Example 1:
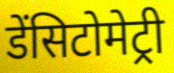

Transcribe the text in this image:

डेंसिटोमेट्री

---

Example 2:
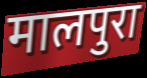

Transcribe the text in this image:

मालपुरा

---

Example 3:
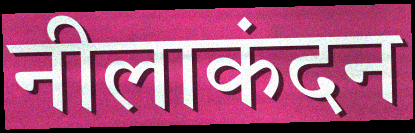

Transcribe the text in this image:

नीलाकंदन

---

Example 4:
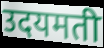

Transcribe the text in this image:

उदयमती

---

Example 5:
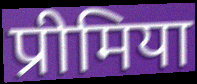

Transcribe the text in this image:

प्रीमिया